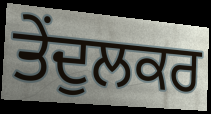
ਤੇਂਦੁਲਕਰ